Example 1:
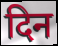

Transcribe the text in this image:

दिन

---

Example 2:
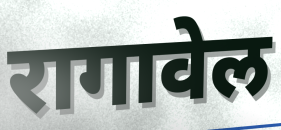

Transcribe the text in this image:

रागावेल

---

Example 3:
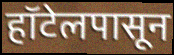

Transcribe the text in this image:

हॉटेलपासून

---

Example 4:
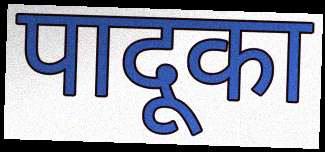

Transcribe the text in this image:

पादूका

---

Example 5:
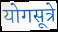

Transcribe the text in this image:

योगसूत्रे